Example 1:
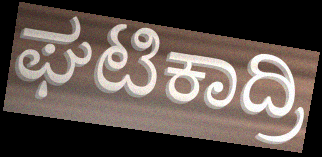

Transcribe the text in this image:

ಘಟಿಕಾದ್ರಿ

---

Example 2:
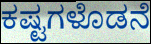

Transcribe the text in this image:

ಕಷ್ಟಗಳೊಡನೆ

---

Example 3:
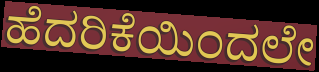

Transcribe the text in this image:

ಹೆದರಿಕೆಯಿಂದಲೇ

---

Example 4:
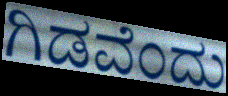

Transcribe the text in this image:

ಗಿಡವೆಂದು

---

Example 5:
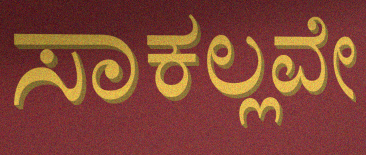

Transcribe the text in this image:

ಸಾಕಲ್ಲವೇ